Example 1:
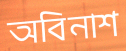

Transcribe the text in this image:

অবিনাশ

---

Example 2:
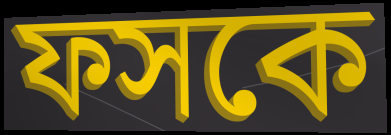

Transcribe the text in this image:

ফসকে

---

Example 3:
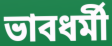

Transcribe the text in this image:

ভাবধর্মী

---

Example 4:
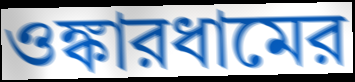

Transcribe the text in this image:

ওঙ্কারধামের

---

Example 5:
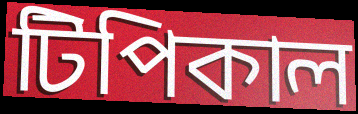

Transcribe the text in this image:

টিপিকাল